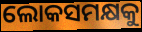
ଲୋକସମକ୍ଷକୁ